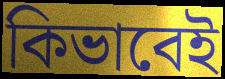
কিভাবেই